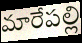
మారేపల్లి